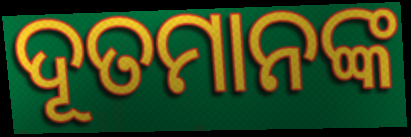
ଦୂତମାନଙ୍କ